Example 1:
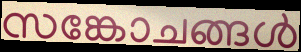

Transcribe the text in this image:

സങ്കോചങ്ങൾ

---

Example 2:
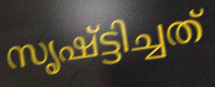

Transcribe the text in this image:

സൃഷ്ട്ടിച്ചത്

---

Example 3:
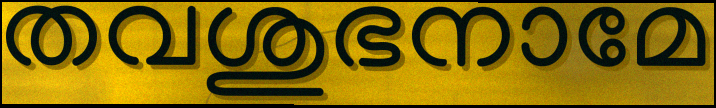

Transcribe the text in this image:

തവശുഭനാമേ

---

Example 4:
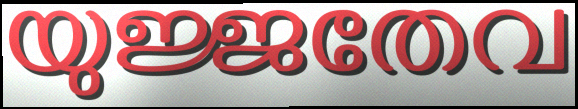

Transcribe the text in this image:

യുജ്ജതേവ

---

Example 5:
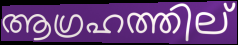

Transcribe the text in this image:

ആഗ്രഹത്തില്